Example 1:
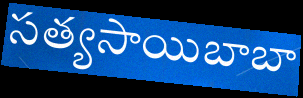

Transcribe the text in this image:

సత్యసాయిబాబా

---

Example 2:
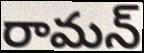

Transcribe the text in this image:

రామన్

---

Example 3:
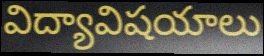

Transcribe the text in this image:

విద్యావిషయాలు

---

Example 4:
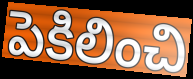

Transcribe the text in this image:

పెకిలించి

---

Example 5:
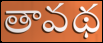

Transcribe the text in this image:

తావథ